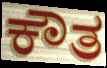
ಕೌತ